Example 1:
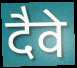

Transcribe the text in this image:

दैवे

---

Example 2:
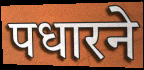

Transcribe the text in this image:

पधारने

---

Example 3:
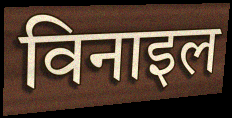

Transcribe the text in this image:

विनाइल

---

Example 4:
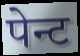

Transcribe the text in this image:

पेन्ट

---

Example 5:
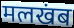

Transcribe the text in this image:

मलखंब